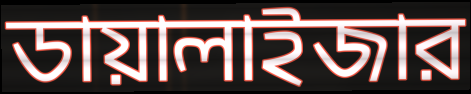
ডায়ালাইজার